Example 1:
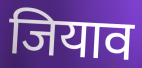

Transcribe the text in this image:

जियाव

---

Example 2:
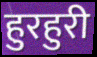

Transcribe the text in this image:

हुरहुरी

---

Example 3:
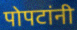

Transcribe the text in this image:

पोपटांनी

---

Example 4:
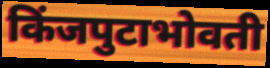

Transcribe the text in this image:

किंजपुटाभोवती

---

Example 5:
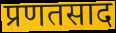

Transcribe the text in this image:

प्रणतसाद